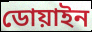
ডোয়াইন